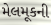
મેલમૂકની